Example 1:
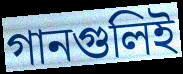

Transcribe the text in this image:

গানগুলিই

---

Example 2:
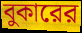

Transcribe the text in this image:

বুকারের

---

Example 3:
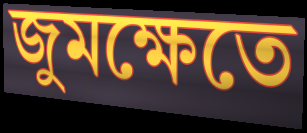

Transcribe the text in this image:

জুমক্ষেতে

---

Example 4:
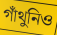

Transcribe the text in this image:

গাঁথুনিও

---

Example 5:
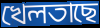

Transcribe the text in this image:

খেলতাছে